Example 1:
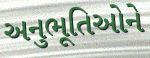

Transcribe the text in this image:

અનુભૂતિઓને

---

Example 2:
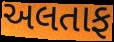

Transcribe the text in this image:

અલતાફ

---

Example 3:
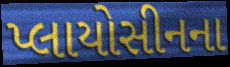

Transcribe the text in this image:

પ્લાયોસીનના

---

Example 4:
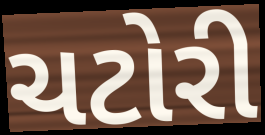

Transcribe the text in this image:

ચટોરી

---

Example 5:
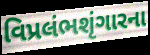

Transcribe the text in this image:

વિપ્રલંભશૃંગારના